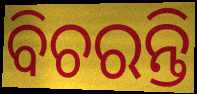
ବିଚରନ୍ତି